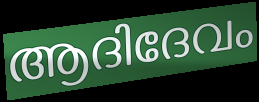
ആദിദേവം